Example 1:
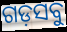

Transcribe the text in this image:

ଗଡ଼ସବୁ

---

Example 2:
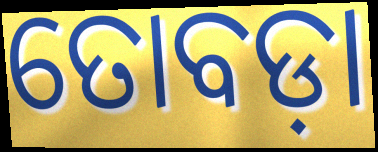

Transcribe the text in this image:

ତୋବଡ଼ା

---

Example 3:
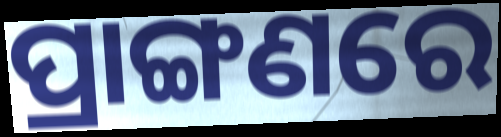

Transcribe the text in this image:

ପ୍ରାଙ୍ଗଣରେ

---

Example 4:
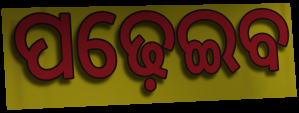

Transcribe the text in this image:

ପଢ଼େଇବ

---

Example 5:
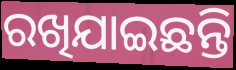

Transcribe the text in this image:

ରଖିଯାଇଛନ୍ତି